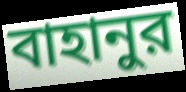
বাহানুর